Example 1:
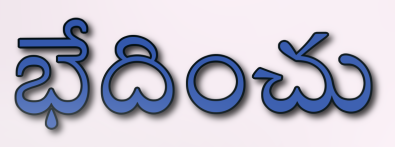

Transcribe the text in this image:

భేదించు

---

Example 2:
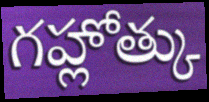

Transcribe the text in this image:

గహ్లోత్కు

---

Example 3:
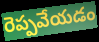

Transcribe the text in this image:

రెప్పవేయడం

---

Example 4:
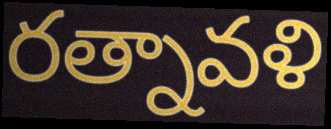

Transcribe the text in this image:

రత్నావళి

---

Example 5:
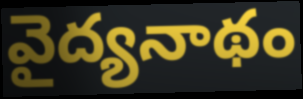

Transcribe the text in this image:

వైద్యనాథం